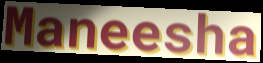
Maneesha